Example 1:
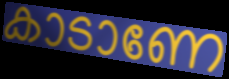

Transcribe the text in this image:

കാടാണേ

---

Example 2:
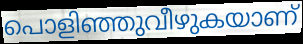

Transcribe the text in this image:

പൊളിഞ്ഞുവീഴുകയാണ്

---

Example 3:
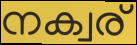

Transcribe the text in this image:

നക്വര്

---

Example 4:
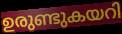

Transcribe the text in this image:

ഉരുണ്ടുകയറി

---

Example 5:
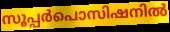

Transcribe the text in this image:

സൂപ്പർപൊസിഷനിൽ